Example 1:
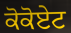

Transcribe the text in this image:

ਕੋਕੋਏਟ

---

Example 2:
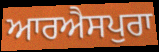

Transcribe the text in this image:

ਆਰਐਸਪੁਰਾ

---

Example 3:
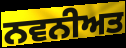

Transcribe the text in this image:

ਨਵਨੀਅਤ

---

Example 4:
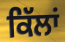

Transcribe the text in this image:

ਕਿੱਲਾਂ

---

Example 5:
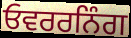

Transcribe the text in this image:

ਓਵਰਰਨਿੰਗ